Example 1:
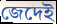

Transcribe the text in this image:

জেদেই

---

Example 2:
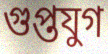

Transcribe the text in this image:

গুপ্তযুগ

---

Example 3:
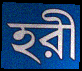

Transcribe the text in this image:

হরী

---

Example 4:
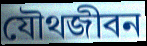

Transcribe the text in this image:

যৌথজীবন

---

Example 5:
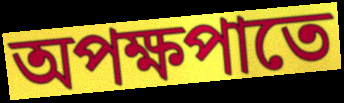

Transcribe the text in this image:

অপক্ষপাতে